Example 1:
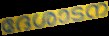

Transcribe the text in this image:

ദേശാടന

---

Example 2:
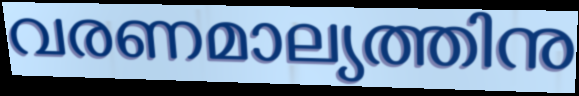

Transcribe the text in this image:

വരണമാല്യത്തിനു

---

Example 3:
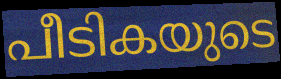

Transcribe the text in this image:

പീടികയുടെ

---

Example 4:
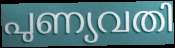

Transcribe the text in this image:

പുണ്യവതി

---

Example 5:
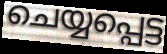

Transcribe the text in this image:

ചെയ്യപ്പെട്ട